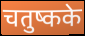
चतुष्कके